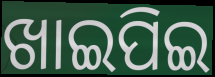
ଖାଇପିଇ